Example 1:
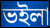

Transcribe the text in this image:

ভইলা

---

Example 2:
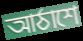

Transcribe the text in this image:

আঠাশে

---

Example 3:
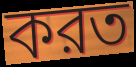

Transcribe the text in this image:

করত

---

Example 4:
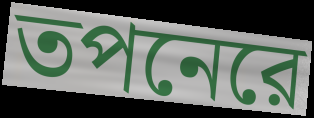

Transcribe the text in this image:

তপনেরে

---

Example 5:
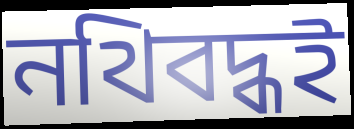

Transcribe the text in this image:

নথিবদ্ধই